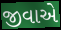
જીવાએ